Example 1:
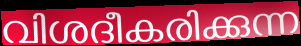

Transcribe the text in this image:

വിശദീകരിക്കുന്ന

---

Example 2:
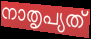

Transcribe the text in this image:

നാതൃപ്യത്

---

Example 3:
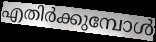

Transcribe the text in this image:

എതിർക്കുമ്പോൾ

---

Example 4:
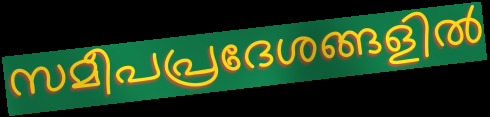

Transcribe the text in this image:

സമീപപ്രദേശങ്ങളിൽ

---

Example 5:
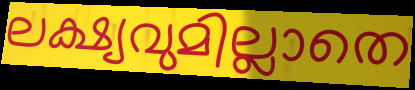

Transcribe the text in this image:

ലക്ഷ്യവുമില്ലാതെ